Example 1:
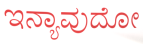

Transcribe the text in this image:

ಇನ್ಯಾವುದೋ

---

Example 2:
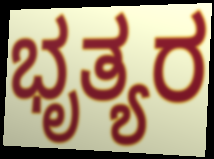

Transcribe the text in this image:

ಭೃತ್ಯರ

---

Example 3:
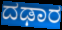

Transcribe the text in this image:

ದಢಾರ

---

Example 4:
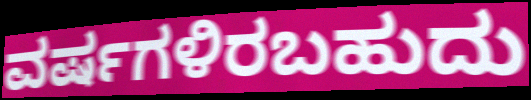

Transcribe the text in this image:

ವರ್ಷಗಳಿರಬಹುದು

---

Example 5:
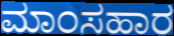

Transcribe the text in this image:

ಮಾಂಸಹಾರ